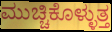
ಮುಚ್ಚಿಕೊಳ್ಳುತ್ತ